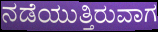
ನಡೆಯುತ್ತಿರುವಾಗ